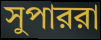
সুপাররা